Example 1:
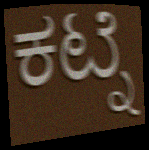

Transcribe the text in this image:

ಕಟ್ನೆ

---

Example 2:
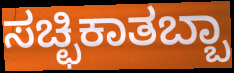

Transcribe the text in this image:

ಸಚ್ಛಿಕಾತಬ್ಬಾ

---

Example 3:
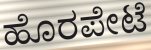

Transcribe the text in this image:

ಹೊರಪೇಟೆ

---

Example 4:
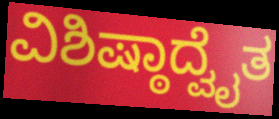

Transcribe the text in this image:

ವಿಶಿಷ್ಠಾದ್ವೈತ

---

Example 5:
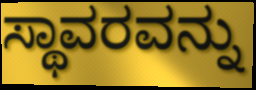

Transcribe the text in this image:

ಸ್ಥಾವರವನ್ನು